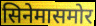
सिनेमासमोर